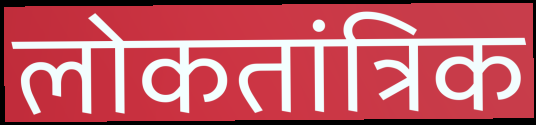
लोकतांत्रिक